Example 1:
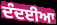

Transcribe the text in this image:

ਦੰਦਈਆ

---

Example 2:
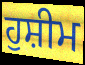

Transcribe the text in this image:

ਹੁਸ਼ੀਮ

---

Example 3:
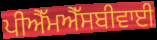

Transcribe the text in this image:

ਪੀਐੱਮਐੱਸਬੀਵਾਈ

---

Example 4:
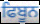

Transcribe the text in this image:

ਫਿਬੂਨ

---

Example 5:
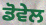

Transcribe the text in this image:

ਡੋਵੇਲ